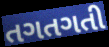
તગતગતી